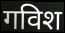
गविश